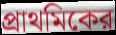
প্রাথমিকের